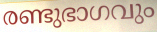
രണ്ടുഭാഗവും